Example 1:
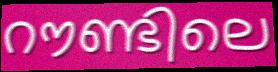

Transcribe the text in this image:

റൗണ്ടിലെ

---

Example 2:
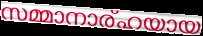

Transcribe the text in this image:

സമ്മാനാര്ഹയായ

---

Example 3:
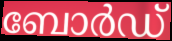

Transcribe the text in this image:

ബോർഡ്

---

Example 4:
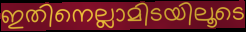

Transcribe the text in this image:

ഇതിനെല്ലാമിടയിലൂടെ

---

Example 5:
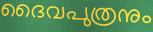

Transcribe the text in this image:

ദൈവപുത്രനും